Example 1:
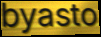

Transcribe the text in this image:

byasto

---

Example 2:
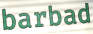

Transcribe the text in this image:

barbad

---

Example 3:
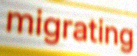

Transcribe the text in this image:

migrating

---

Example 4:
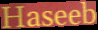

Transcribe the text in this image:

Haseeb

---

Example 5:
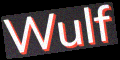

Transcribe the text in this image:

Wulf